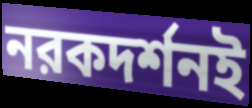
নরকদর্শনই